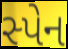
સ્પેન